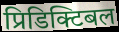
प्रिडिक्टिबल